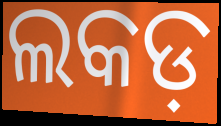
ଲକଡ଼